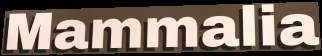
Mammalia